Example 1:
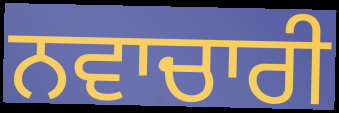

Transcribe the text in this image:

ਨਵਾਚਾਰੀ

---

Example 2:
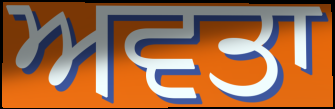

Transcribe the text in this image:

ਅਵਤਾ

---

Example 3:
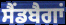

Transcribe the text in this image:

ਸੈਂਡਬੈਗਾਂ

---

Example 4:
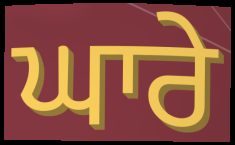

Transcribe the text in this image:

ਘਾਰੇ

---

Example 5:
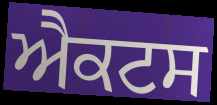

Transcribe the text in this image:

ਐਕਟਸ